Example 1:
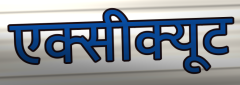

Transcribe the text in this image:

एक्सीक्यूट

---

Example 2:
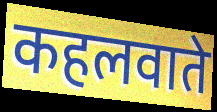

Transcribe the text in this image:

कहलवाते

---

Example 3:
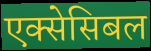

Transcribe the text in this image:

एक्सेसिबल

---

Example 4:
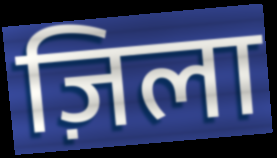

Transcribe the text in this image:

ज़िला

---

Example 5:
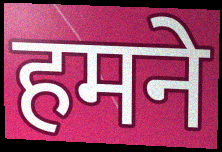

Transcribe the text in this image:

हमने